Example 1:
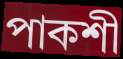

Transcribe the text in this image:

পাকশী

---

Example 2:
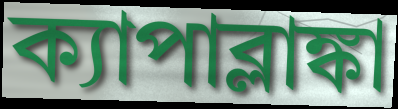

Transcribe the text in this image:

ক্যাপাব্লাঙ্কা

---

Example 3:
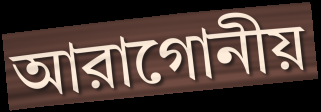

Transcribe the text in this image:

আরাগোনীয়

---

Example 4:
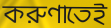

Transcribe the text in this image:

করুণাতেই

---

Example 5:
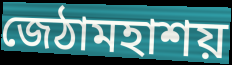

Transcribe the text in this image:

জেঠামহাশয়